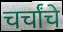
चर्चांचे